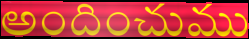
అందించుము